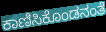
ಕಾಣಿಸಿಕೊಂಡನಂತೆ